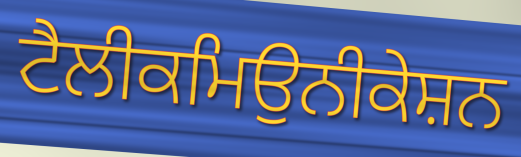
ਟੈਲੀਕਮਿਉਨੀਕੇਸ਼ਨ